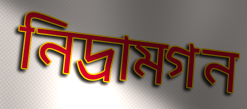
নিদ্রামগন